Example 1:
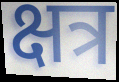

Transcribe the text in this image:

क्षत्र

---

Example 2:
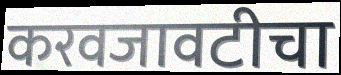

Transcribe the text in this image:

करवजावटीचा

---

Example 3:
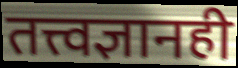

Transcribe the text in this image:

तत्त्वज्ञानही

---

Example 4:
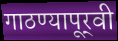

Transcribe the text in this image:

गाठण्यापूर्वी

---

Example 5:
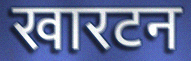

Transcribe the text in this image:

खारटन